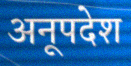
अनूपदेश